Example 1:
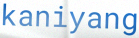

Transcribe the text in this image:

kaniyang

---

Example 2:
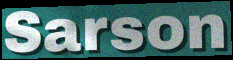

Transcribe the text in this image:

Sarson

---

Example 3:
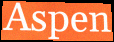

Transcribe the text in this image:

Aspen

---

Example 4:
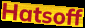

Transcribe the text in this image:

Hatsoff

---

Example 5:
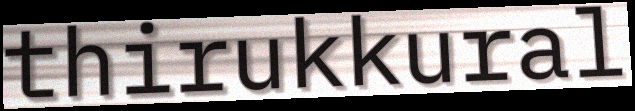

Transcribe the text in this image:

thirukkural